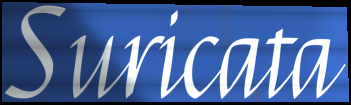
Suricata